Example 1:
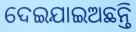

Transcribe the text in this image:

ଦେଇଯାଇଅଛନ୍ତି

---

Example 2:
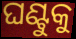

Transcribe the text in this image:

ଘଣ୍ଟୁକୁ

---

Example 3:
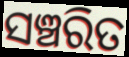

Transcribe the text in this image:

ସଞ୍ଚରିତ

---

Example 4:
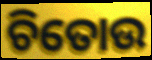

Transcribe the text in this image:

ଚିତୋଉ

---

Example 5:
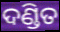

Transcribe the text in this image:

ଦଣ୍ଡିତ